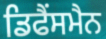
ਡਿਫੈਂਸਮੈਨ